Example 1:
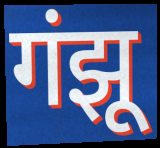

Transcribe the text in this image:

गंझू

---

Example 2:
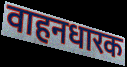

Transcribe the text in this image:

वाहनधारक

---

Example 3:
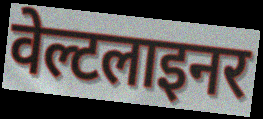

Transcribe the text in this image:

वेल्टलाइनर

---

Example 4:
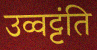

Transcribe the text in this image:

उव्वट्टंति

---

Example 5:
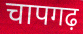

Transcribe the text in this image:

चापगढ़